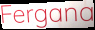
Fergana